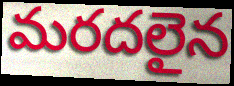
మరదలైన